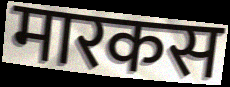
मारकस